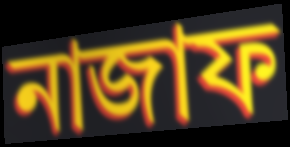
নাজাফ